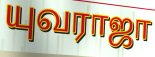
யுவராஜா